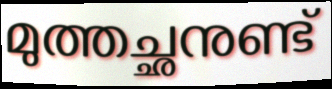
മുത്തച്ഛനുണ്ട്